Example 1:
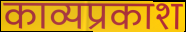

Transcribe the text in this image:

काव्यप्रकाश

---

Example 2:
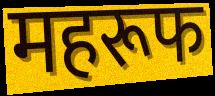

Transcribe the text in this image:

महरूफ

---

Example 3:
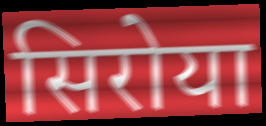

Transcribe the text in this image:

सिरोया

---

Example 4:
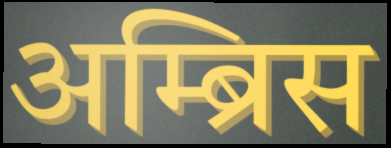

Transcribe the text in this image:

अम्ब्रिस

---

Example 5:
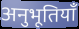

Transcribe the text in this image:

अनुभूतियाँ